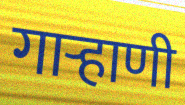
गार्‍हाणी